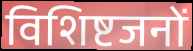
विशिष्टजनों